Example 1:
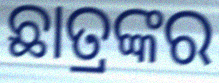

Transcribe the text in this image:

ଛାତ୍ରଙ୍କର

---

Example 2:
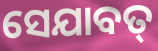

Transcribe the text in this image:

ସେଯାବତ୍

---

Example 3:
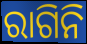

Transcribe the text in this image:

ରାଗିନି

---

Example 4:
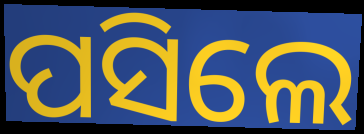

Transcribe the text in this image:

ପସିଲେ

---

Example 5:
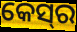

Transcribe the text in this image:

କେସ୍‌ର